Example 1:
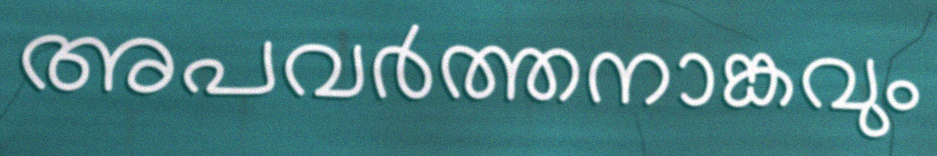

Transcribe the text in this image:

അപവർത്തനാങ്കവും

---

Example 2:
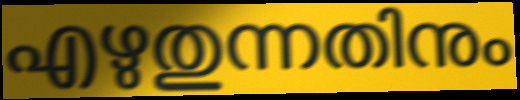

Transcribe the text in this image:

എഴുതുന്നതിനും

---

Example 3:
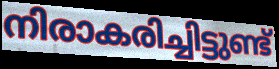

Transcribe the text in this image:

നിരാകരിച്ചിട്ടുണ്ട്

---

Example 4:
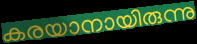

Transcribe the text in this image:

കരയാനായിരുന്നു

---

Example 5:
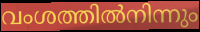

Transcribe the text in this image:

വംശത്തിൽനിന്നും